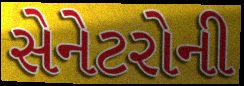
સેનેટરોની